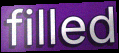
filled